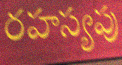
రహస్యపు